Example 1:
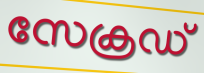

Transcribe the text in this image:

സേക്രഡ്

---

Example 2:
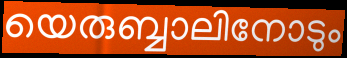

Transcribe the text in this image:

യെരുബ്ബാലിനോടും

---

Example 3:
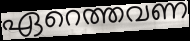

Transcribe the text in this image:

ഏറെത്തവണ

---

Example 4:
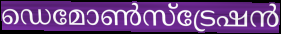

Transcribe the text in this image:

ഡെമോൺസ്ട്രേഷൻ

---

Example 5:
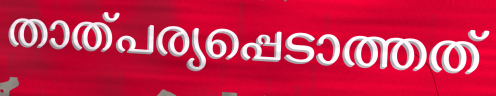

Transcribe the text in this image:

താത്പര്യപ്പെടാത്തത്